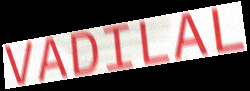
VADILAL